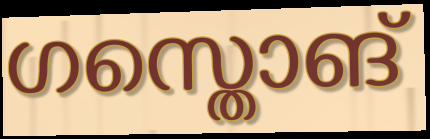
ഗസ്തൊങ്